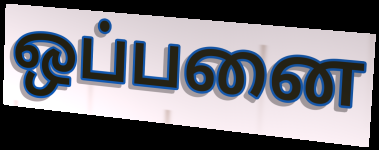
ஒப்பனை